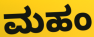
ಮಹಂ